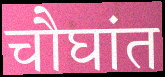
चौघांत